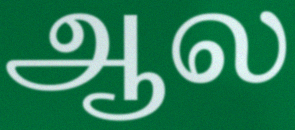
ஆல